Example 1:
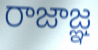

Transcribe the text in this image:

రాజాజ్ఞ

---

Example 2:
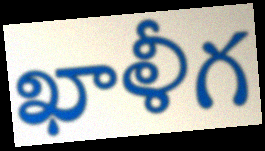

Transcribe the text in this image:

ఖాళీగ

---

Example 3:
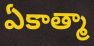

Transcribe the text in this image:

ఏకాత్మా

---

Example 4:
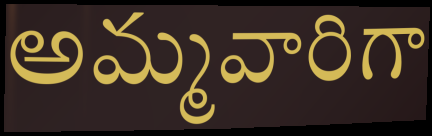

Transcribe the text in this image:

అమ్మవారిగా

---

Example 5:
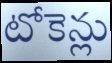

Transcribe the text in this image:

టోకెన్లు